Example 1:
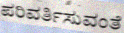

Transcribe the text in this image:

ಪರಿವರ್ತಿಸುವಂತೆ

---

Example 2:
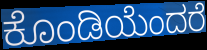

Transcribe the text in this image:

ಕೊಂಡಿಯೆಂದರೆ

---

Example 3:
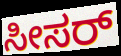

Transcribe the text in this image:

ಸೀಸರ್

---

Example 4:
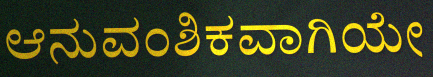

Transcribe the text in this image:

ಆನುವಂಶಿಕವಾಗಿಯೇ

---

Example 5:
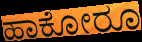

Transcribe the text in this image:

ಹಾಕೋರೂ